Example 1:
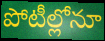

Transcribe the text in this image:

పోటీల్లోనూ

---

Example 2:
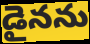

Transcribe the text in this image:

డైనను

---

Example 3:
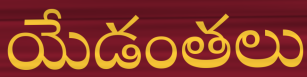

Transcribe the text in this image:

యేడంతలు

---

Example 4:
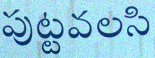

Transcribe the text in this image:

పుట్టవలసి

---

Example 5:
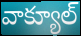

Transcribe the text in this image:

వాక్యూల్